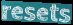
resets